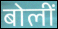
बोलीं